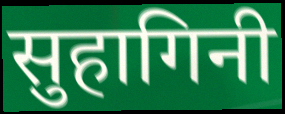
सुहागिनी